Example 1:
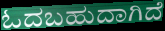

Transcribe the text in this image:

ಓದಬಹುದಾಗಿದೆ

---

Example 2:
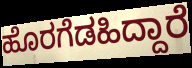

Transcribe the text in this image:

ಹೊರಗೆಡಹಿದ್ದಾರೆ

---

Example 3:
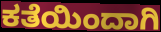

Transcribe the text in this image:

ಕತೆಯಿಂದಾಗಿ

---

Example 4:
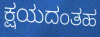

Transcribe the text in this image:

ಕ್ಷಯದಂತಹ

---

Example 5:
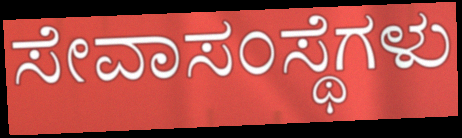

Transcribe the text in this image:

ಸೇವಾಸಂಸ್ಥೆಗಳು